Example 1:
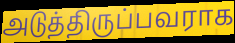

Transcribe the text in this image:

அடுத்திருப்பவராக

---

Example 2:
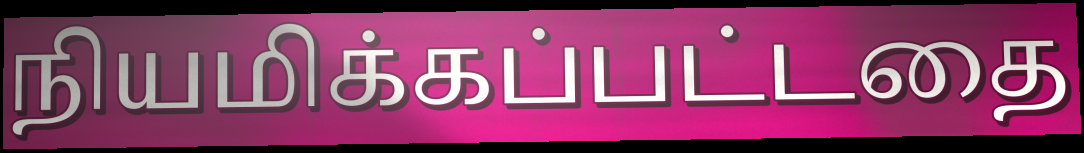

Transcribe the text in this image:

நியமிக்கப்பட்டதை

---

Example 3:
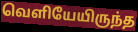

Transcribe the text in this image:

வெளியேயிருந்த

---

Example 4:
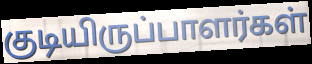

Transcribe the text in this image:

குடியிருப்பாளர்கள்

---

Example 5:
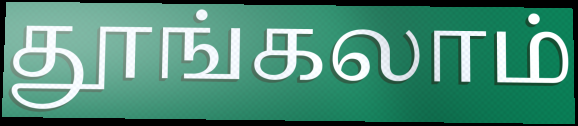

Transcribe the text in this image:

தூங்கலாம்